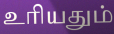
உரியதும்